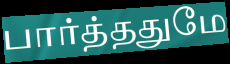
பார்த்ததுமே